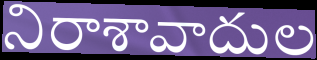
నిరాశావాదుల